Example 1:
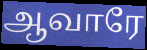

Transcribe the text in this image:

ஆவாரே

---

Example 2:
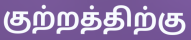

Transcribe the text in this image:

குற்றத்திற்கு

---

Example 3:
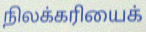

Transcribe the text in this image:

நிலக்கரியைக்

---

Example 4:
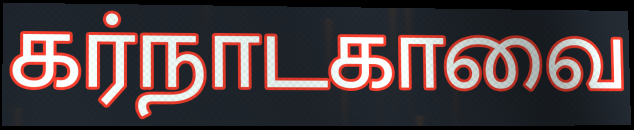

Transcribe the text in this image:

கர்நாடகாவை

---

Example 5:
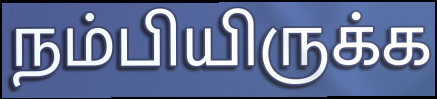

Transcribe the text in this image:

நம்பியிருக்க